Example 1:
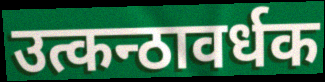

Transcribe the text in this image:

उत्कन्ठावर्धक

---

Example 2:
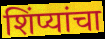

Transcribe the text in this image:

शिंप्यांचा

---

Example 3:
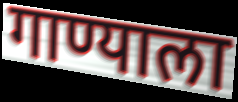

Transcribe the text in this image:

गाण्याला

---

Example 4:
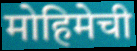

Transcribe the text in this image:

मोहिमेची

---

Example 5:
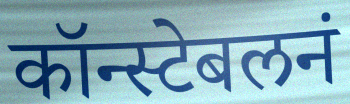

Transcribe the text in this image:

कॉन्स्टेबलनं